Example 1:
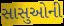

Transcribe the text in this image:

સાસુઓની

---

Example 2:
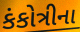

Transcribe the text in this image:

કંકોત્રીના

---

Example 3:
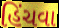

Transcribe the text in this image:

હિંચવા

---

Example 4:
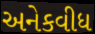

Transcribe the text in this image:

અનેકવીધ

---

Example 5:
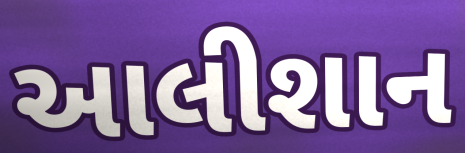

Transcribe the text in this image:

આલીશાન